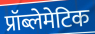
प्रॉब्लेमेटिक